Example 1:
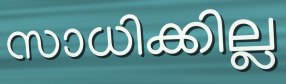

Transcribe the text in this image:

സാധിക്കില്ല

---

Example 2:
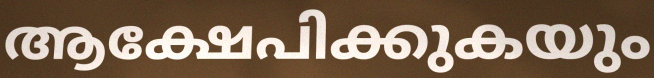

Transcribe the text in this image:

ആക്ഷേപിക്കുകയും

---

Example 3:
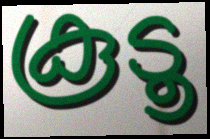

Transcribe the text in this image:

കൂടൂ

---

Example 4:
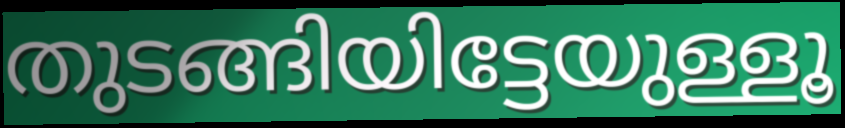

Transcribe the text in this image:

തുടങ്ങിയിട്ടേയുള്ളൂ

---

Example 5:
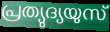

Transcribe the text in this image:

പ്രത്യുദ്യയുസ്